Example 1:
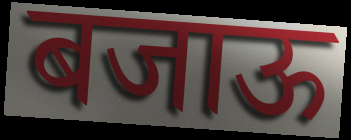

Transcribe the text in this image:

बजाऊ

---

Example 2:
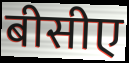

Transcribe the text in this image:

बीसीए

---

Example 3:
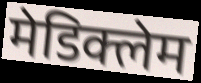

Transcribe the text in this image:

मेडिक्लेम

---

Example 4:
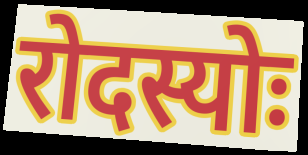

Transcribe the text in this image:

रोदस्योः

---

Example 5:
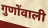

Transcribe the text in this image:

गुणोंवाली